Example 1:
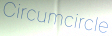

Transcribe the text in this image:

Circumcircle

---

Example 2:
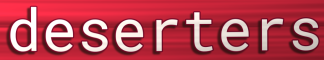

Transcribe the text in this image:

deserters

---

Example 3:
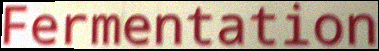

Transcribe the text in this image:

Fermentation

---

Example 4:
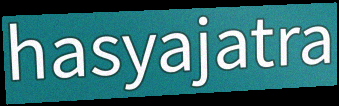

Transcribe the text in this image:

hasyajatra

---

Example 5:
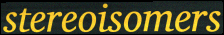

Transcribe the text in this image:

stereoisomers